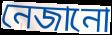
নেজানো